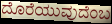
ದೊರೆಯುವುದೆಂಬ